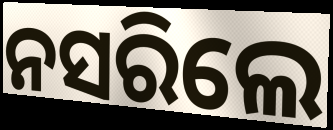
ନସରିଲେ